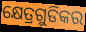
କ୍ଷେତ୍ରଗୁଡିକର